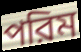
পরিম